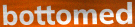
bottomed